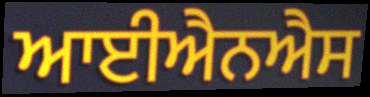
ਆਈਐਨਐਸ